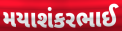
મયાશંકરભાઈ